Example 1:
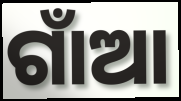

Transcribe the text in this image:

ଗାଁଆ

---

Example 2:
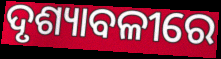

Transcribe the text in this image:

ଦୃଶ୍ୟାବଳୀରେ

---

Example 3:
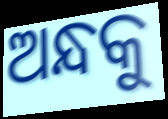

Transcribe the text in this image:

ଅନ୍ଧକୁ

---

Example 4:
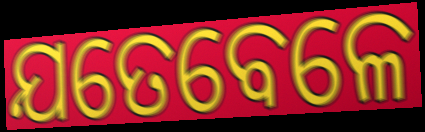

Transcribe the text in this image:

ଯତେବେଳେ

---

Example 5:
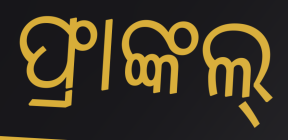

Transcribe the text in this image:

ଫ୍ରାଙ୍କଲ୍